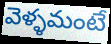
వెళ్ళమంటే